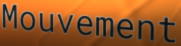
Mouvement